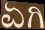
ಏಗಿ